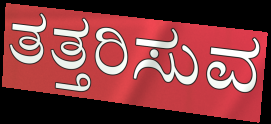
ತತ್ತರಿಸುವ